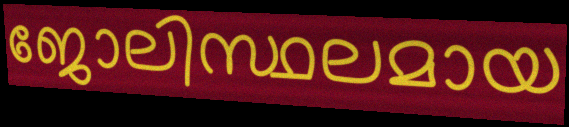
ജോലിസ്ഥലമായ